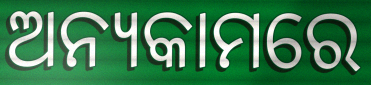
ଅନ୍ୟକାମରେ